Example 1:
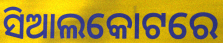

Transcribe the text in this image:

ସିଆଲକୋଟରେ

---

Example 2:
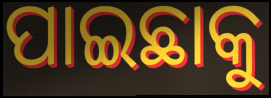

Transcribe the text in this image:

ପାଇଛାକୁ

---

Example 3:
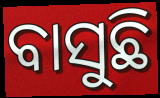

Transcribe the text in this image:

ବାସୁଛି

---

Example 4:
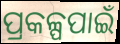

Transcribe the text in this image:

ପ୍ରକଳ୍ପପାଇଁ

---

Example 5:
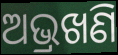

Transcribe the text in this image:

ଅଭ୍ରଖଣି